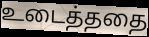
உடைத்ததை